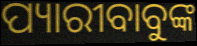
ପ୍ୟାରୀବାବୁଙ୍କ